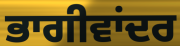
ਭਾਗੀਵਾਂਦਰ